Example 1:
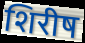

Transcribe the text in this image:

शिरीष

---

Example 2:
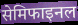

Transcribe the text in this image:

सेमिफाइनल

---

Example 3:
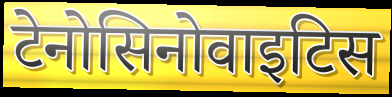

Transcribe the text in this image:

टेनोसिनोवाइटिस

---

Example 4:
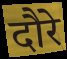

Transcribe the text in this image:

दौरे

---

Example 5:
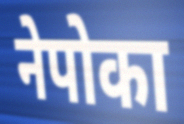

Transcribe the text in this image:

नेपोका